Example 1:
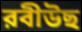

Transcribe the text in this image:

রবীউছ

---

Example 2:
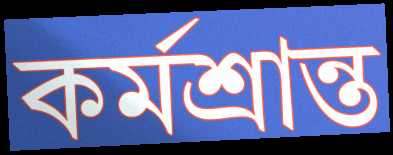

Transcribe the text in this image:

কর্মশ্রান্ত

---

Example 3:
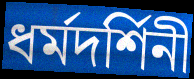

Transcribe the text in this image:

ধর্মদর্শিনী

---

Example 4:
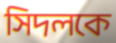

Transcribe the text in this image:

সিদলকে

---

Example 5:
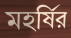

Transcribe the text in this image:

মহর্ষির